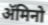
ॲमिनो